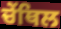
ਚੇਂਥਿਲ